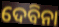
ଦେବିନା